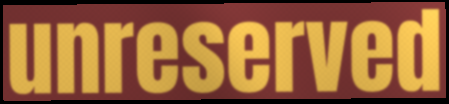
unreserved